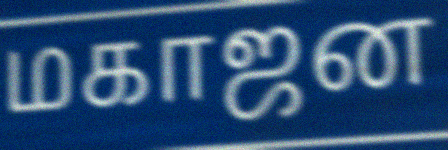
மகாஜன